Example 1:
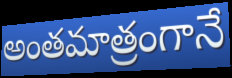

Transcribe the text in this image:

అంతమాత్రంగానే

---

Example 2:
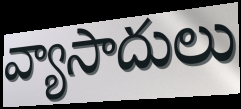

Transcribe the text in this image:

వ్యాసాదులు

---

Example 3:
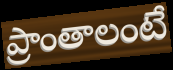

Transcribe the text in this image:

ప్రాంతాలంటే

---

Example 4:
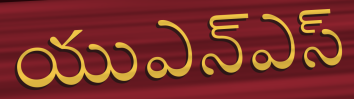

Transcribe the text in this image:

యుఎన్ఎస్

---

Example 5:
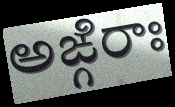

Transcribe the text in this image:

అఙ్గిరాః